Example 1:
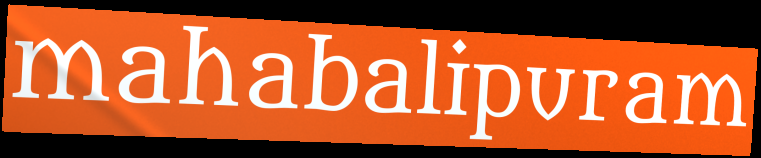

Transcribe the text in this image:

mahabalipuram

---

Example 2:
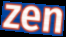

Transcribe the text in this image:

zen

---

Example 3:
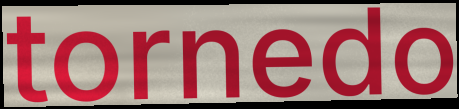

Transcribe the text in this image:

tornedo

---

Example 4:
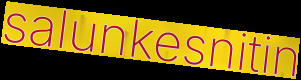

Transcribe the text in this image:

salunkesnitin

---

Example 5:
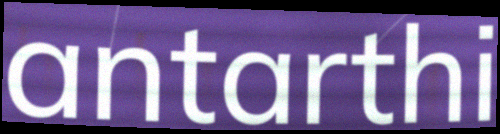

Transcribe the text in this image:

antarthi